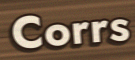
Corrs